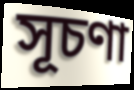
সূচণা